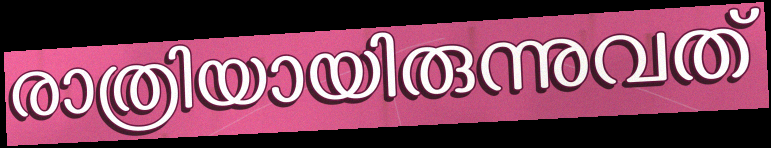
രാത്രിയായിരുന്നുവത്